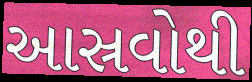
આસ્રવોથી